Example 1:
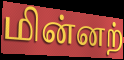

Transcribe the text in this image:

மின்னற்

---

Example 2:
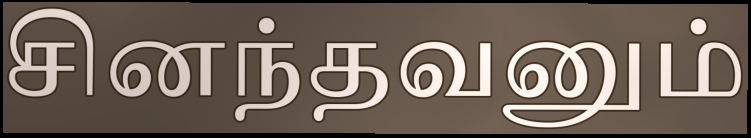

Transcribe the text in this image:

சினந்தவனும்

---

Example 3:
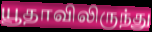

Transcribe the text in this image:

யூதாவிலிருந்து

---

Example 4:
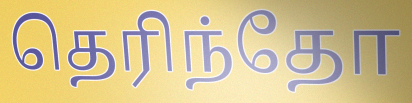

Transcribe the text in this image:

தெரிந்தோ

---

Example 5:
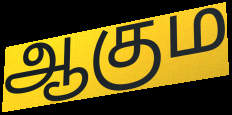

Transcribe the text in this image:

ஆகும